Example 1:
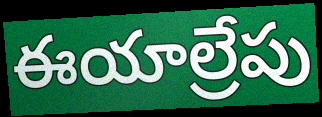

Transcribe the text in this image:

ఈయాల్రేపు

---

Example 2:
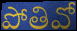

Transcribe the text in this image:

పోతివో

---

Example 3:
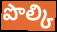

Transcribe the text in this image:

పొల్కి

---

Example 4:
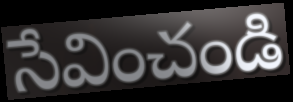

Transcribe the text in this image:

సేవించండి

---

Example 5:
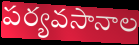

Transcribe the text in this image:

పర్యవసానాల